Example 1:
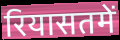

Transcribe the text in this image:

रियासतमें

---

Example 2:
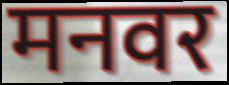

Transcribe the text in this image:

मनवर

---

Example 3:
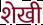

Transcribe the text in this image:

शेखी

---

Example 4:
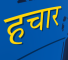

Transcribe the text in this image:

हचार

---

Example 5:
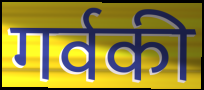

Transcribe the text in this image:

गर्वकी